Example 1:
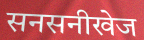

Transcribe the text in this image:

सनसनीखेज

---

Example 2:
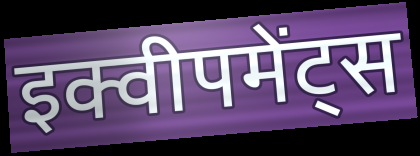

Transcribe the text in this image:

इक्वीपमेंट्स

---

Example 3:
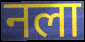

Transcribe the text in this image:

नला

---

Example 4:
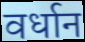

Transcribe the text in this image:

वर्धान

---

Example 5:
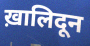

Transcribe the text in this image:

ख़ालिदून